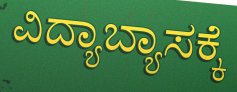
ವಿದ್ಯಾಬ್ಯಾಸಕ್ಕೆ